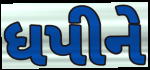
ધપીને